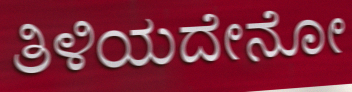
ತಿಳಿಯದೇನೋ